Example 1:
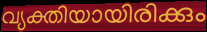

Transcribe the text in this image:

വ്യക്തിയായിരിക്കും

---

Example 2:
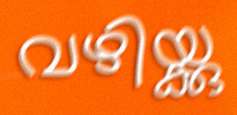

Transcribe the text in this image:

വഴിയ്ക്കു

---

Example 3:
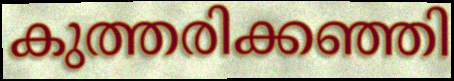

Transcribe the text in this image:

കുത്തരിക്കഞ്ഞി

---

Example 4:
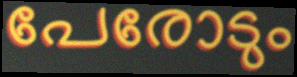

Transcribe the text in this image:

പേരോടും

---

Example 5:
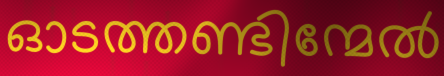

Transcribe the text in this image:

ഓടത്തണ്ടിന്മേൽ